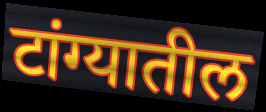
टांग्यातील